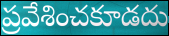
ప్రవేశించకూడదు